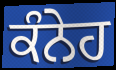
ਕੰਨੇਹ